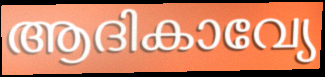
ആദികാവ്യേ